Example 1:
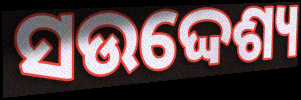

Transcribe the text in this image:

ସଉଦ୍ଦେଶ୍ୟ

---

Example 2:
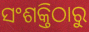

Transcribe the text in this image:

ସଂଶକ୍ତିଠାରୁ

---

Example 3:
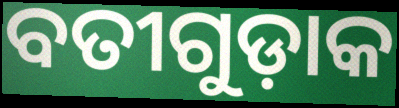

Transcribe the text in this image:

ବତୀଗୁଡ଼ାକ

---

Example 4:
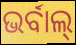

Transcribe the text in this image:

ଭର୍ବାଲ୍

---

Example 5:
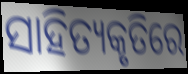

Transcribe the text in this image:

ସାହିତ୍ୟକୃତିରେ